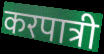
करपात्री